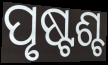
ପୃଷ୍ଟଶ୍ଚ